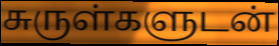
சுருள்களுடன்